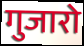
गुजारो